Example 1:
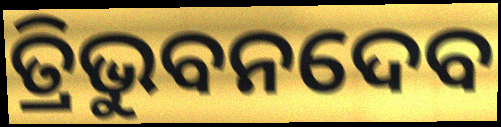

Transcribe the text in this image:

ତ୍ରିଭୁବନଦେବ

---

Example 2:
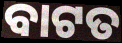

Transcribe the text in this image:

ବାଟତ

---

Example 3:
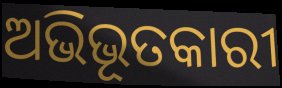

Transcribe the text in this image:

ଅଭିଭୂତକାରୀ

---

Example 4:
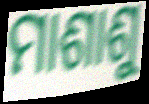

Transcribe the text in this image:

ମାଶାଶୁ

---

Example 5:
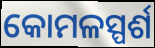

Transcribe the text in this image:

କୋମଳସ୍ପର୍ଶ